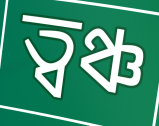
ত্বঞ্চ